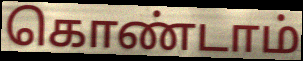
கொண்டாம்